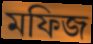
মফিজ